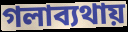
গলাব্যথায়